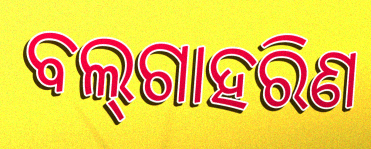
ବଲ୍‌ଗାହରିଣ